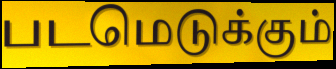
படமெடுக்கும்